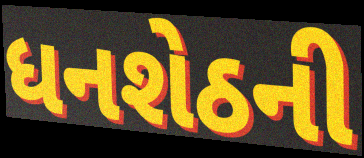
ધનશેઠની